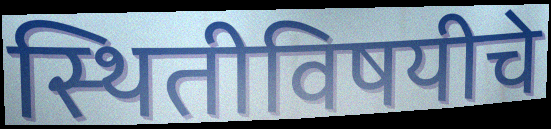
स्थितीविषयीचे